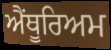
ਐਂਥੂਰਿਅਮ